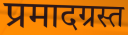
प्रमादग्रस्त